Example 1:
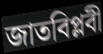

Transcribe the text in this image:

জাতবিপ্লবী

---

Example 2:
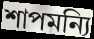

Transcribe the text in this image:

শাপমন্যি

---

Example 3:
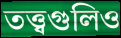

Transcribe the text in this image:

তত্ত্বগুলিও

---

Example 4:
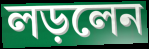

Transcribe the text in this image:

লড়লেন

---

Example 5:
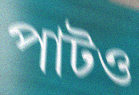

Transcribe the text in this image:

পাটও